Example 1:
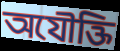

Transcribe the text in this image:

অযৌক্তি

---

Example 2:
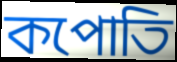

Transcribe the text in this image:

কপোতি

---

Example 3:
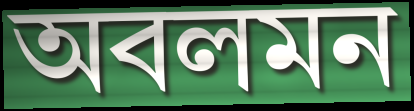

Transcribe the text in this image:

অবলমন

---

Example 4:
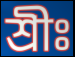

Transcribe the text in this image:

শ্রীঃ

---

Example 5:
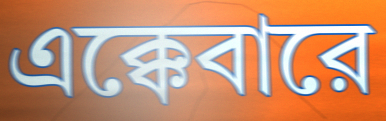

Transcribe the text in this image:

এক্কেবারে